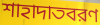
শাহাদাতবরণ